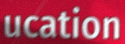
ucation